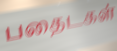
பதைடகள்